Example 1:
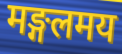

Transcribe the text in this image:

मङ्गलमय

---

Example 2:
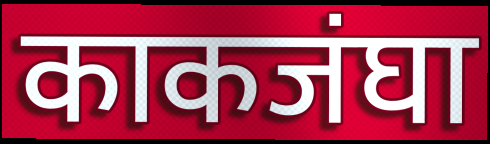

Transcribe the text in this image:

काकजंघा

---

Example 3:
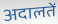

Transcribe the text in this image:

अदालतें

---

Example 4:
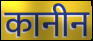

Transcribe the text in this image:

कानीन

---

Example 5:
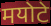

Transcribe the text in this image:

मयोटे